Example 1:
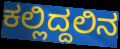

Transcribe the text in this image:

ಕಲ್ಲಿದ್ದಲಿನ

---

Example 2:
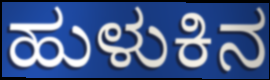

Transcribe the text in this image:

ಹುಳುಕಿನ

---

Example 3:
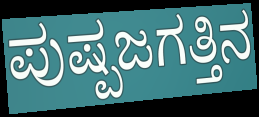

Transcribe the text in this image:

ಪುಷ್ಪಜಗತ್ತಿನ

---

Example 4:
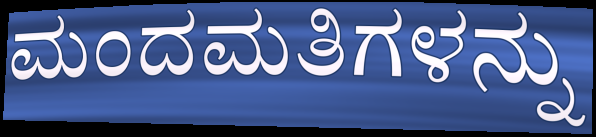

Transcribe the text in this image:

ಮಂದಮತಿಗಳನ್ನು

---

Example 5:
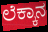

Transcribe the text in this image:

ಲೆಕ್ಕಾನ